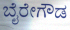
ಬೈರೇಗೌಡ